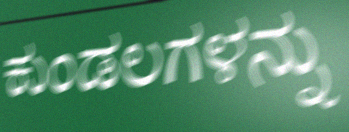
ಕುಂಡಲಗಳನ್ನು